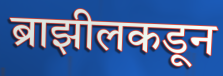
ब्राझीलकडून